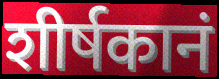
शीर्षकानं